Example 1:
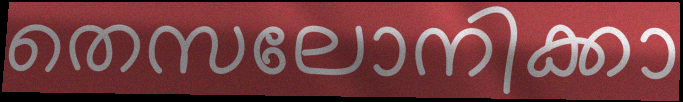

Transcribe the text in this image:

തെസലോനിക്കാ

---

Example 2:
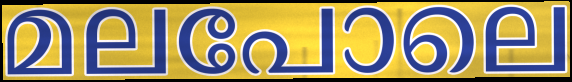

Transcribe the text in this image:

മലപോലെ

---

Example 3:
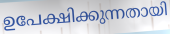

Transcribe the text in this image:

ഉപേക്ഷിക്കുന്നതായി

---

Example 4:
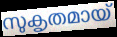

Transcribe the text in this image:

സുകൃതമായ്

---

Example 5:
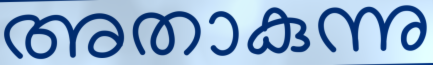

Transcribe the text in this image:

അതാകുന്നു